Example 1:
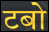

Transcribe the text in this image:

टबो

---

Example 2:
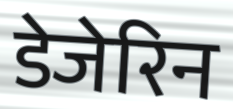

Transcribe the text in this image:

डेजेरिन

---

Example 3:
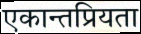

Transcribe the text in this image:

एकान्तप्रियता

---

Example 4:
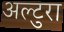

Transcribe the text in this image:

अल्टुरा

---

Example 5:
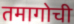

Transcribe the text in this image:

तमागोची